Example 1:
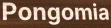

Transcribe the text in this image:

Pongomia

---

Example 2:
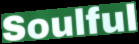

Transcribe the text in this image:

Soulful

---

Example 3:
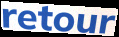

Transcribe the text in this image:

retour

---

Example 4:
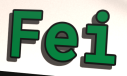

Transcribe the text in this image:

Fei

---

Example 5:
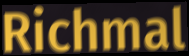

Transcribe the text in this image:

Richmal